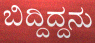
ಬಿದ್ದಿದ್ದನು